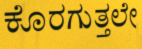
ಕೊರಗುತ್ತಲೇ